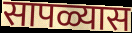
सापळ्यास